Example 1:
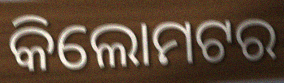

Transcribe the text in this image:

କିଲୋମଟର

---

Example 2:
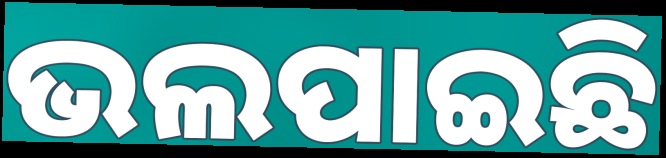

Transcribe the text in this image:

ଭଲପାଇଛି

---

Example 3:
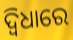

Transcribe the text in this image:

ଦ୍ଵିଧାରେ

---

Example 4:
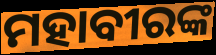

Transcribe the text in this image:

ମହାବୀରଙ୍କ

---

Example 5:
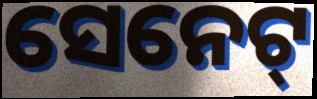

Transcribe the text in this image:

ସେନେଟ୍